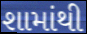
શામાંથી